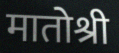
मातोश्री